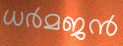
ധർമജൻ